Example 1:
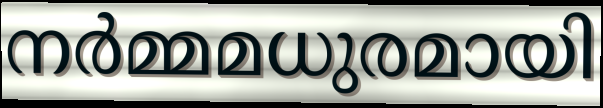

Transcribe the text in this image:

നർമ്മമധുരമായി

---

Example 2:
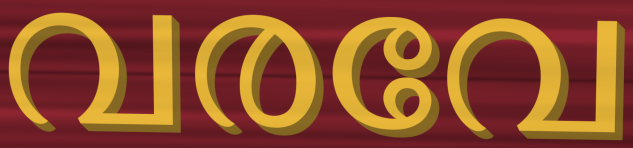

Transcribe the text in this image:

വരവേ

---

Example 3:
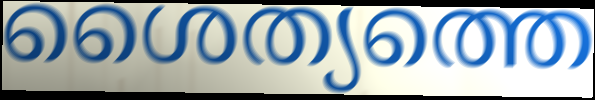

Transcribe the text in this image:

ശൈത്യത്തെ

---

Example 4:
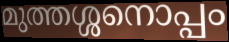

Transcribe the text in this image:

മുത്തശ്ശനൊപ്പം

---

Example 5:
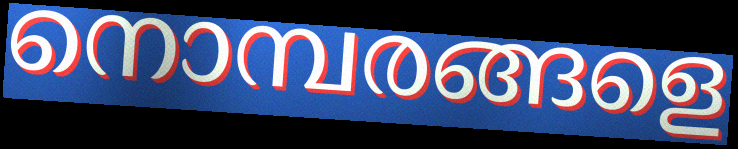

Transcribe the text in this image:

നൊമ്പരങ്ങളെ